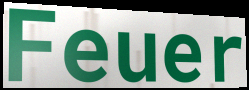
Feuer